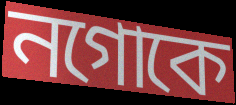
নগোকে